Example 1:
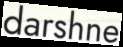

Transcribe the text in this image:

darshne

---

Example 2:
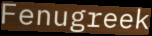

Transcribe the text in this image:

Fenugreek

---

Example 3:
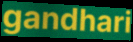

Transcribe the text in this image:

gandhari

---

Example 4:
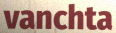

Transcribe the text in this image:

vanchta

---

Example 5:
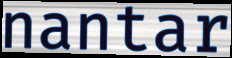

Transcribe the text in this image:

nantar